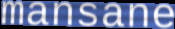
mansane